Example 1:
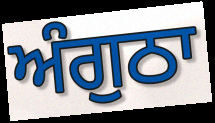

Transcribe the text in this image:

ਅੰਗੁਠਾ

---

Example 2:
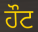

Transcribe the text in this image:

ਹੌਟ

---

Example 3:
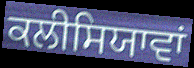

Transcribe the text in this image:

ਕਲੀਸਿਯਾਵਾਂ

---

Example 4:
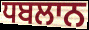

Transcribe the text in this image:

ਧਬਲਾਨ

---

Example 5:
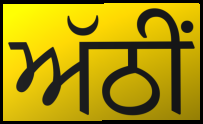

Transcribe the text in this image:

ਅੱਠੀਂ